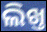
ଲିଖ୍ତ